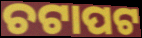
ଚଟାପଟ